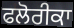
ਫਲੋਰੀਕਾ